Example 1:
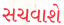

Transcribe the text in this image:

સચવાશે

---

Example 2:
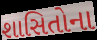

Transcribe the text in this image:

શાસિતોના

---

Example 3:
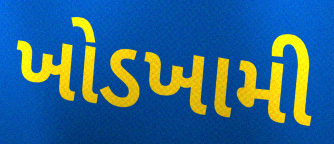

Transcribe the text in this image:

ખોડખામી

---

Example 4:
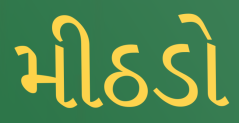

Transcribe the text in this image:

મીઠડો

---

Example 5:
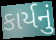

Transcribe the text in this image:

કાર્યનું